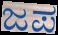
ಜಪ